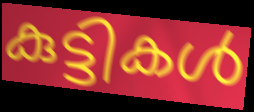
കുട്ടികൾ